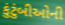
કુંટુંબીઓની